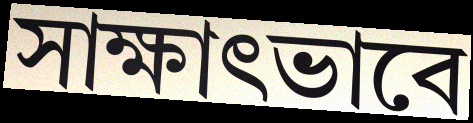
সাক্ষাৎভাবে